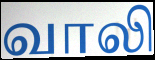
வாலி